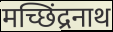
मच्छिंद्रनाथ